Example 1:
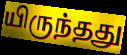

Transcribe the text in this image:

யிருந்தது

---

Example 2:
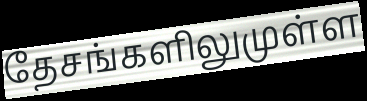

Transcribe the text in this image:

தேசங்களிலுமுள்ள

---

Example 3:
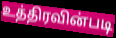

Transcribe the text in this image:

உத்திரவின்படி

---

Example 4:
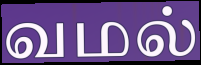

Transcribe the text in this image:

வமல்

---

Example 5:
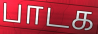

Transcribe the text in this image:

பாடக